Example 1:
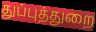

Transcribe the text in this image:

துப்புத்துறை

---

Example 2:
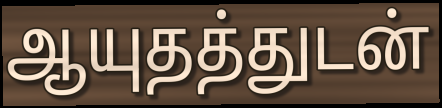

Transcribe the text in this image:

ஆயுதத்துடன்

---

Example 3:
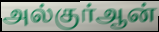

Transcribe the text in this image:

அல்குர்ஆன்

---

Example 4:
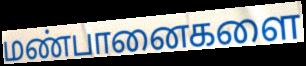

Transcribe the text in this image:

மண்பானைகளை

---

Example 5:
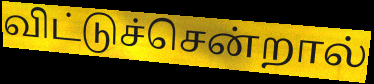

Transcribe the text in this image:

விட்டுச்சென்றால்